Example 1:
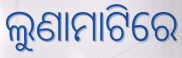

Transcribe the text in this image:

ଲୁଣାମାଟିରେ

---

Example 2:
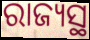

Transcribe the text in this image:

ରାଜ୍ୟସ୍ଥ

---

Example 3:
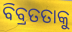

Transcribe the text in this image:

ବିବ୍ରତତାକୁ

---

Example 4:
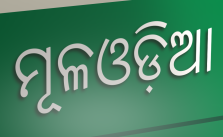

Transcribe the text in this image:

ମୂଳଓଡ଼ିଆ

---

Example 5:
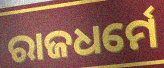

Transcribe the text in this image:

ରାଜଧର୍ମେ